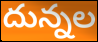
దున్నల